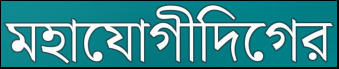
মহাযোগীদিগের